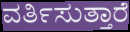
ವರ್ತಿಸುತ್ತಾರೆ